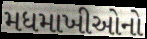
મધમાખીઓનો